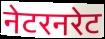
नेटरनरेट